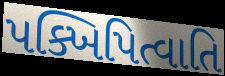
પક્ખિપિત્વાતિ